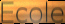
Ecole